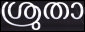
ശ്രുതാ